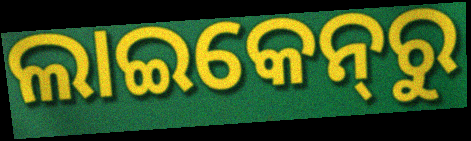
ଲାଇକେନ୍‌ରୁ